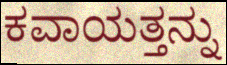
ಕವಾಯತ್ತನ್ನು